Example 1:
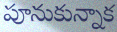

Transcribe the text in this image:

పూనుకున్నాక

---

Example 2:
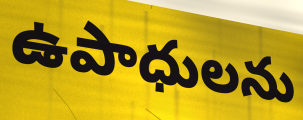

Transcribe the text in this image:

ఉపాధులను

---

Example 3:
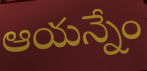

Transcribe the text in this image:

ఆయన్నేం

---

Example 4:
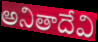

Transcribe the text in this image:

అనితాదేవి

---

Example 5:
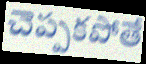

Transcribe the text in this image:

చెప్పకపోతే